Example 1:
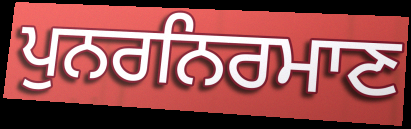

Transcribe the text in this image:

ਪੁਨਰਨਿਰਮਾਣ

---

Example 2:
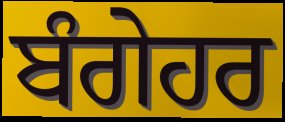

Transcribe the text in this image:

ਬੰਗੇਹਰ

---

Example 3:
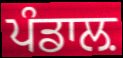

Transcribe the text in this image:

ਪੰਡਾਲ਼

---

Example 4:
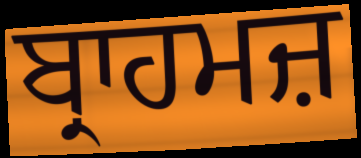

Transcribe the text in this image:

ਬ੍ਰਾਹਮਜ਼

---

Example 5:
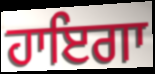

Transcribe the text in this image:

ਹਾਇਗਾ